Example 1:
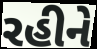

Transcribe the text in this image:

રહીને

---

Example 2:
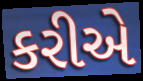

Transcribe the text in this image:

કરીએ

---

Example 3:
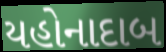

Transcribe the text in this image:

યહોનાદાબ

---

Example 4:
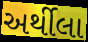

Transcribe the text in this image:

અર્થીલા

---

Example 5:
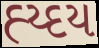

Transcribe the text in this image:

હ્ય્દય